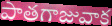
పాతగాజువాక